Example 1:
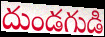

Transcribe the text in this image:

దుండగుడి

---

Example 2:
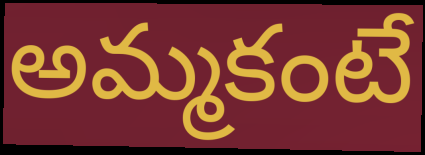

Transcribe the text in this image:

అమ్మకంటే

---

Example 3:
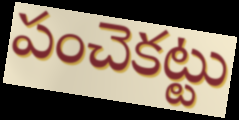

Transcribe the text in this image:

పంచెకట్టు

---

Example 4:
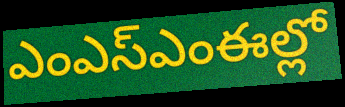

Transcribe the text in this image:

ఎంఎస్ఎంఈల్లో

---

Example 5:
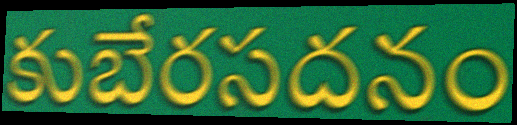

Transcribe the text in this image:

కుబేరసదనం